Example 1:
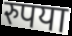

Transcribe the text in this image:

रुपया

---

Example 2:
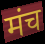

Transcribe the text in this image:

मंच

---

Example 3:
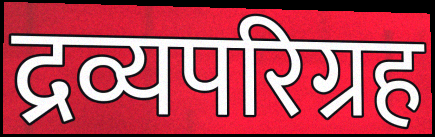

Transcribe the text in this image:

द्रव्यपरिग्रह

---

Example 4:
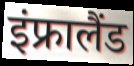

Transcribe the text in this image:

इंफ्रालैंड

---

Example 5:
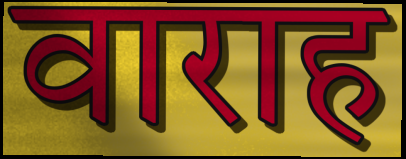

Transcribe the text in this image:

वाराह